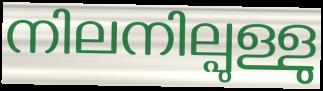
നിലനില്പുള്ളു